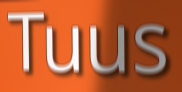
Tuus